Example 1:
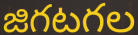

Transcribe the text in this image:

జిగటగల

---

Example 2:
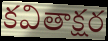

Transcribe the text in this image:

కవితాక్షర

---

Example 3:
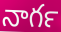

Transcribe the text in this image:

నాగర్‍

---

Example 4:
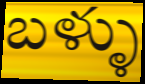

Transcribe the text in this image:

బళ్ళు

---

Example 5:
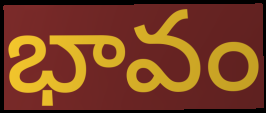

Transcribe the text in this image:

భావం